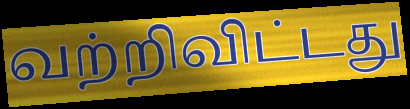
வற்றிவிட்டது